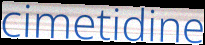
cimetidine